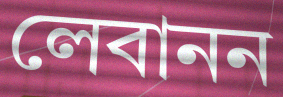
লেবানন